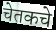
चेतकचे